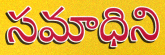
సమాధిని